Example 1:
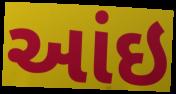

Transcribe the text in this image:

આંઇ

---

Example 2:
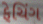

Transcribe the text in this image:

ફેચિંગ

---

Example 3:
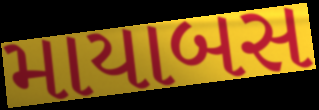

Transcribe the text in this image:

માયાબસ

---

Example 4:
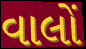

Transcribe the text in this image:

વાલોં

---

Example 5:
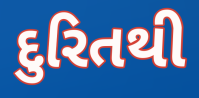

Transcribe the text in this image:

દુરિતથી